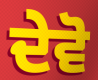
ਦੇਵੋ